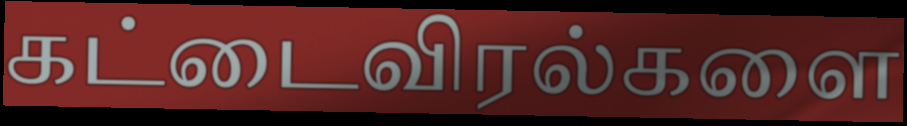
கட்டைவிரல்களை